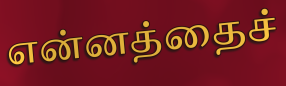
என்னத்தைச்